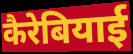
कैरेबियाई